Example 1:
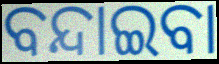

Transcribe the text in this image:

ବନ୍ଦାଇବା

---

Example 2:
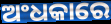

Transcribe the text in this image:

ଅଂଧକାରେ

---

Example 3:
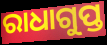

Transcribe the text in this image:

ରାଧାଗୁପ୍ତ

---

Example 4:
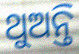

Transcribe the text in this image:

ଥୁଅନ୍ତି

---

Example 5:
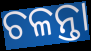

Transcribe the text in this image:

ଚଳନ୍ତା